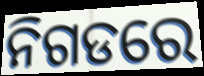
ନିଗଡରେ